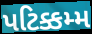
પટિક્કમ્મ